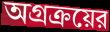
অগ্রক্রয়ের